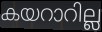
കയറാറില്ല